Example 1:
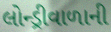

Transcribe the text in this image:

લોન્ડ્રીવાળાની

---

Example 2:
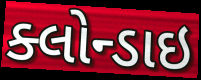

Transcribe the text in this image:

ક્લોન્ડાઇ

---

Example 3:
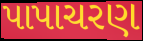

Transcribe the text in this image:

પાપાચરણ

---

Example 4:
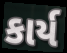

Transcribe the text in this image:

કાર્ય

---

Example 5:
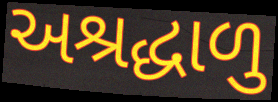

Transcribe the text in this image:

અશ્રદ્ધાળુ